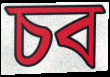
চব